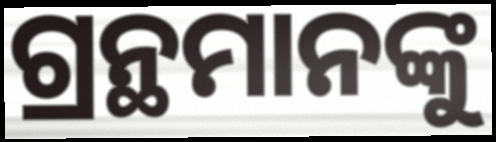
ଗ୍ରନ୍ଥମାନଙ୍କୁ